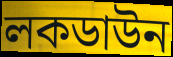
লকডাউন